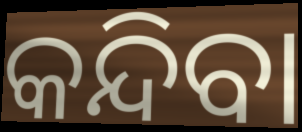
କନ୍ଦିବା